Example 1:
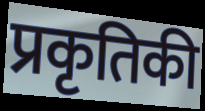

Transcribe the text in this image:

प्रकृतिकी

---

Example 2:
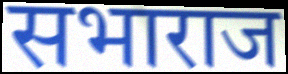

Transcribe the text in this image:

सभाराज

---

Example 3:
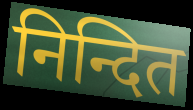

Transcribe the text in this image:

निन्दित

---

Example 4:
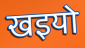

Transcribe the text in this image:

खइयो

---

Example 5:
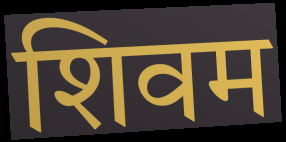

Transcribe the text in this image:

शिवम